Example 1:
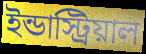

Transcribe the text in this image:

ইন্ডাস্ট্রিয়াল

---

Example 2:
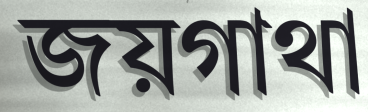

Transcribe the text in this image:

জয়গাথা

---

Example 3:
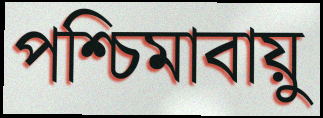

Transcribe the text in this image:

পশ্চিমাবায়ু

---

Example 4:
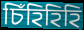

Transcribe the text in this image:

চিঁহিহিহি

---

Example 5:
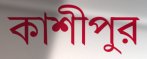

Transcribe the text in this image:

কাশীপুর